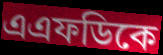
এএফডিকে